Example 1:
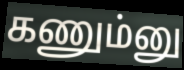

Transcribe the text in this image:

கணும்னு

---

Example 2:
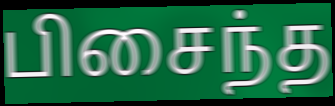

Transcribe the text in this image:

பிசைந்த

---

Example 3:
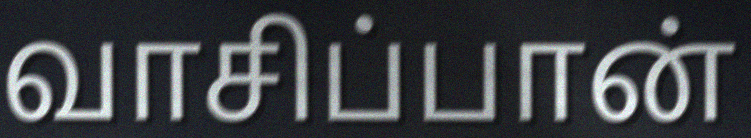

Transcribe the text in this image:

வாசிப்பான்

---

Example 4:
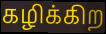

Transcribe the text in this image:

கழிக்கிற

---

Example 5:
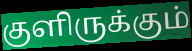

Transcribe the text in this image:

குளிருக்கும்